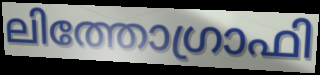
ലിത്തോഗ്രാഫി